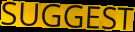
SUGGEST